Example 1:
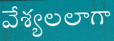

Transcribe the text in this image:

వేశ్యలలాగా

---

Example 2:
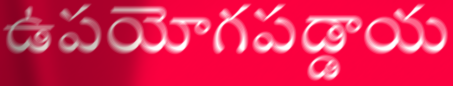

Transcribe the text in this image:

ఉపయోగపడ్డాయ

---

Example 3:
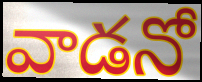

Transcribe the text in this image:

వాడనో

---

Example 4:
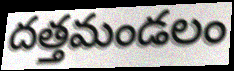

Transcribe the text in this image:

దత్తమండలం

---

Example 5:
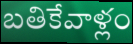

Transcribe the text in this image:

బతికేవాళ్లం